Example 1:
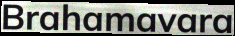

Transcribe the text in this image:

Brahamavara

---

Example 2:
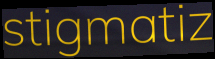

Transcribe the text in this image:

stigmatiz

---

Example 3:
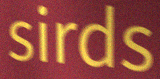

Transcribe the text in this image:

sirds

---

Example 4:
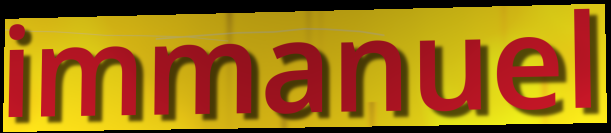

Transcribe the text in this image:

immanuel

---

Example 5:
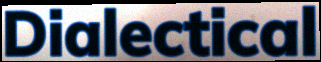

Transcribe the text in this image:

Dialectical